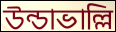
উন্ডাভাল্লি